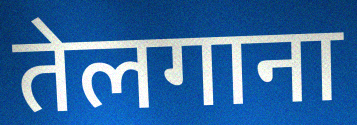
तेलगाना